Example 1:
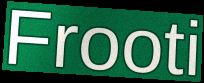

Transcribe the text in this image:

Frooti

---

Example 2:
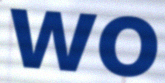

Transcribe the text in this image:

wo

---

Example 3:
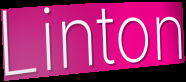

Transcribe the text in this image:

Linton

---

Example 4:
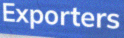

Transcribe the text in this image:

Exporters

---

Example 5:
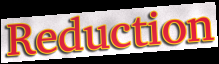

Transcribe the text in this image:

Reduction